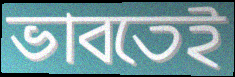
ভাবতেই